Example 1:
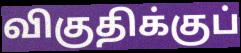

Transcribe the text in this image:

விகுதிக்குப்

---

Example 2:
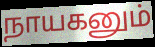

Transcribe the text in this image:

நாயகனும்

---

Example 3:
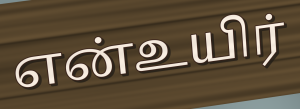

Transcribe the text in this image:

என்உயிர்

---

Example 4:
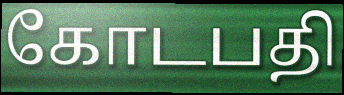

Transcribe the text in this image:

கோடபதி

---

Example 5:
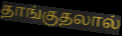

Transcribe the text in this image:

தாங்குதலால்